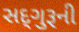
સદ્‌ગુરૂની